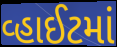
વ્હાઈટમાં